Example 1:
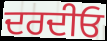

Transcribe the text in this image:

ਦਰਦੀਓ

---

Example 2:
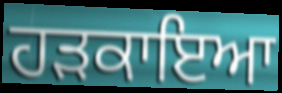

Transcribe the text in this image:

ਹੜਕਾਇਆ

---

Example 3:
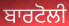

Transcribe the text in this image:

ਬਾਰਟੋਲੀ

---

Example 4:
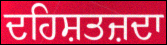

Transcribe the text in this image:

ਦਹਿਸ਼ਤਜ਼ਦਾ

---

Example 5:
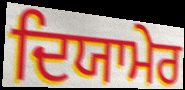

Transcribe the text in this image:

ਦਿਯਾਮੇਰ